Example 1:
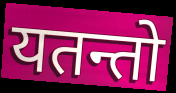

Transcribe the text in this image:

यतन्तो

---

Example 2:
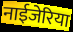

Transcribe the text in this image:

नाईजेरिया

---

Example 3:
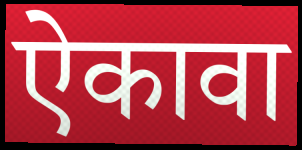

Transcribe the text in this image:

ऐकावा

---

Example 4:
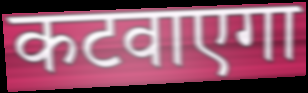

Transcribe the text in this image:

कटवाएगा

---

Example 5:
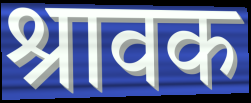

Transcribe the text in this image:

श्रावक